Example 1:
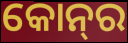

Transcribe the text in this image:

କୋନ୍‌ର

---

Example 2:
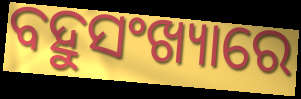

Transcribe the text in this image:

ବହୁସଂଖ୍ୟାରେ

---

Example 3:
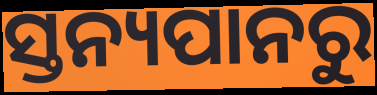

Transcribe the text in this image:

ସ୍ତନ୍ୟପାନରୁ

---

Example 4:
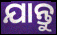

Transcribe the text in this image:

ଯାନ୍ତୁ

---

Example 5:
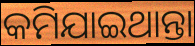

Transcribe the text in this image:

କମିଯାଇଥାନ୍ତା